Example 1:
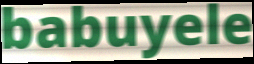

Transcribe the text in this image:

babuyele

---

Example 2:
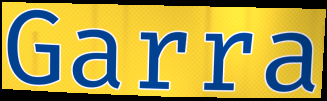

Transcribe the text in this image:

Garra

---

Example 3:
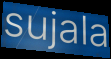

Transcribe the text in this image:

sujala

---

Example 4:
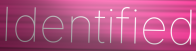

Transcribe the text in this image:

Identified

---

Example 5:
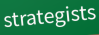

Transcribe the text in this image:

strategists